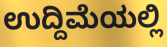
ಉದ್ದಿಮೆಯಲ್ಲಿ